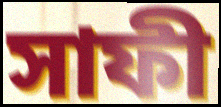
সাফী